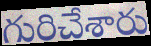
గురిచేశారు